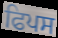
ਫਿਪਸ